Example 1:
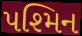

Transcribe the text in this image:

પશ્મિન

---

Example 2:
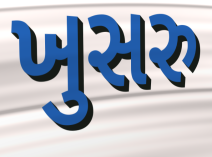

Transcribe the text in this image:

ખુસરુ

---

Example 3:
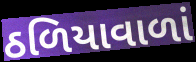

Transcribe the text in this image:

ઠળિયાવાળાં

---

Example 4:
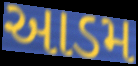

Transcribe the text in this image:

આડમ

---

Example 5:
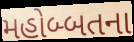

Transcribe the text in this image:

મહોબ્બતના